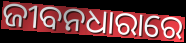
ଜୀବନଧାରାରେ